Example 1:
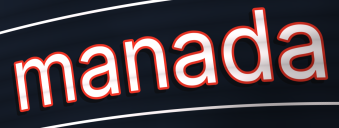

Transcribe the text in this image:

manada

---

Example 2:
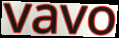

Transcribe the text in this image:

vavo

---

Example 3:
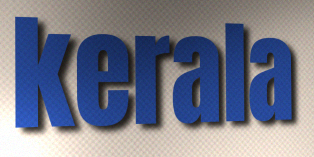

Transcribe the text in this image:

kerala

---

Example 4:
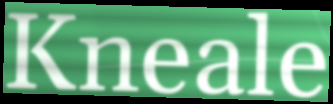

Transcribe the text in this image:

Kneale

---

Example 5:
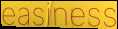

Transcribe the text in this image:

easiness